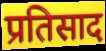
प्रतिसाद